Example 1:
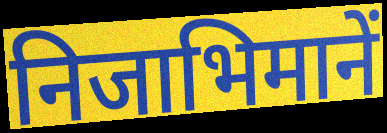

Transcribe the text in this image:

निजाभिमानें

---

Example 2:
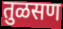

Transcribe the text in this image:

तुळसण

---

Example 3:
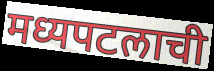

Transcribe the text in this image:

मध्यपटलाची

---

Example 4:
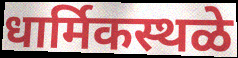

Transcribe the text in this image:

धार्मिकस्थळे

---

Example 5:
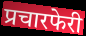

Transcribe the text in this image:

प्रचारफेरी